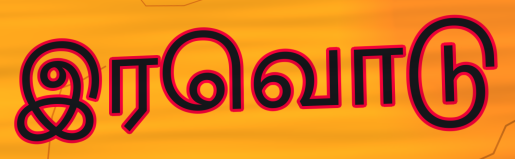
இரவொடு